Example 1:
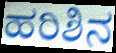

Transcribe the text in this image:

ಹರಿಶಿನ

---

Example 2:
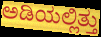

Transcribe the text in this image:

ಅಡಿಯಲ್ಲಿತ್ತು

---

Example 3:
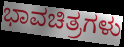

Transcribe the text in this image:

ಭಾವಚಿತ್ರಗಳು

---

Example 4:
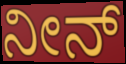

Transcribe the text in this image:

ನೀನ್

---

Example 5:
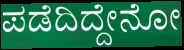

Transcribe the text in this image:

ಪಡೆದಿದ್ದೇನೋ